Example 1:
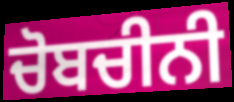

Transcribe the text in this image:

ਚੋਬਚੀਨੀ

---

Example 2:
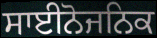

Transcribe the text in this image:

ਸਾਈਨੋਜਨਿਕ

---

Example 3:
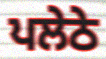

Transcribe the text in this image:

ਪਲੇਠੇ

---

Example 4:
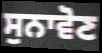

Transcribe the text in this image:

ਸੁਨਾਵੋਣ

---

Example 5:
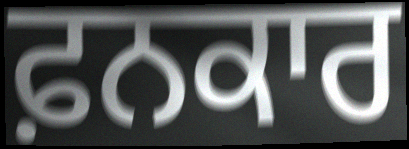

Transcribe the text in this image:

ਫ਼ਨਕਾਰ